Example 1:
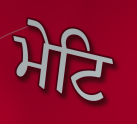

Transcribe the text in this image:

ਮੇਟਿ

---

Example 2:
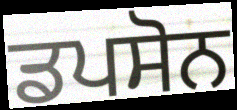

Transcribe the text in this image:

ਡਪਸੋਨ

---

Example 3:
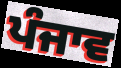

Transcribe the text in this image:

ਪੰਜਾਵ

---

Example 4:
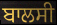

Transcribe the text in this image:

ਬਾਲਸੀ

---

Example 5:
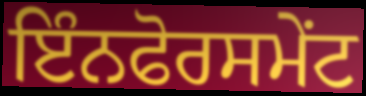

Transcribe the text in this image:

ਇੰਨਫੋਰਸਮੇਂਟ